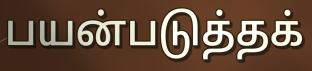
பயன்படுத்தக்